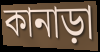
কানাড়া